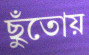
ছুঁতোয়